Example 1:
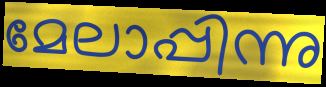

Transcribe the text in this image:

മേലാപ്പിന്നു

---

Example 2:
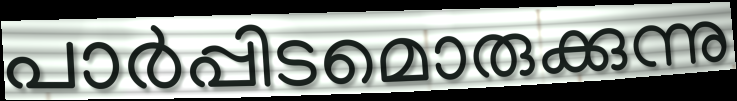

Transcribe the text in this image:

പാർപ്പിടമൊരുക്കുന്നു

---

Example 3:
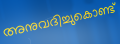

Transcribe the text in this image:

അനുവദിച്ചുകൊണ്ട്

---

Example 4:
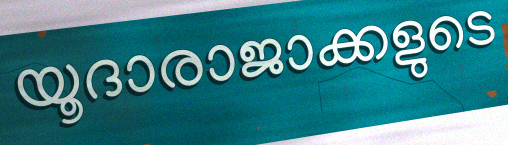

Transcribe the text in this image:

യൂദാരാജാക്കളുടെ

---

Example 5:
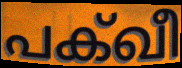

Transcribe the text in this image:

പക്ഖീ